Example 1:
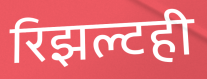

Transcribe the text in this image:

रिझल्टही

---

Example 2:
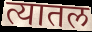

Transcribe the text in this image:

त्यातल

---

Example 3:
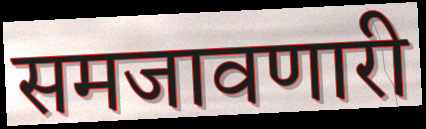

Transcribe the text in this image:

समजावणारी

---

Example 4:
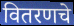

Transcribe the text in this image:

वितरणचे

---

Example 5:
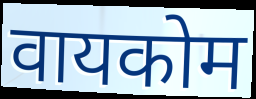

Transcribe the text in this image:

वायकोम